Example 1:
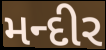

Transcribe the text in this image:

મન્દીર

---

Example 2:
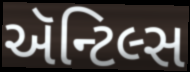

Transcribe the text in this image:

ઍન્ટિલ્સ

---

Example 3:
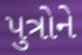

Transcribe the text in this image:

પુત્રોને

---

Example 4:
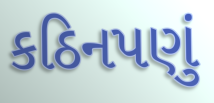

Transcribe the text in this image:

કઠિનપણું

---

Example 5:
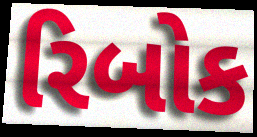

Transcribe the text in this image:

રિબોક